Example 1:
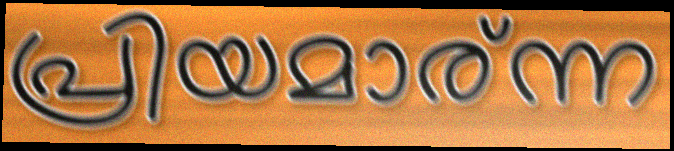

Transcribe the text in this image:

പ്രിയമാര്ന്ന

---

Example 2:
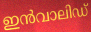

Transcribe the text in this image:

ഇൻവാലിഡ്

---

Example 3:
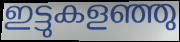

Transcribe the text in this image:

ഇട്ടുകളഞ്ഞു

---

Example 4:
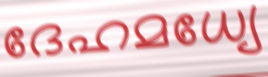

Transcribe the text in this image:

ദേഹമധ്യേ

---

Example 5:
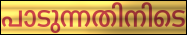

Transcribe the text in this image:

പാടുന്നതിനിടെ